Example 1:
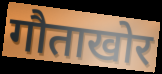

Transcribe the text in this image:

गौताखोर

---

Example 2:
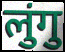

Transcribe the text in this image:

लुंगु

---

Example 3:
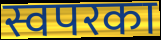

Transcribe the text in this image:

स्वपरका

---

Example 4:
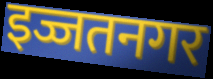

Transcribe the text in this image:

इज्जतनगर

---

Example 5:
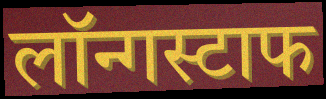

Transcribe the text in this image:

लॉन्गस्टाफ